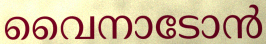
വൈനാടോൻ